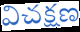
విచక్షణ